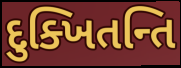
દુક્ખિતન્તિ